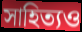
সাহিত্যও